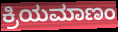
ಕ್ರಿಯಮಾಣಂ